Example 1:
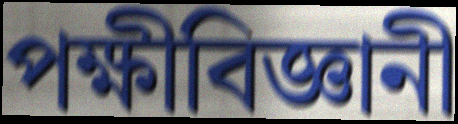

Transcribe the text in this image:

পক্ষীবিজ্ঞানী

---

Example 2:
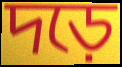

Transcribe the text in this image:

দড়ে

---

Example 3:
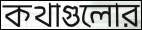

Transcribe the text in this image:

কথাগুলোর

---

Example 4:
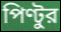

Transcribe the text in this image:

পিণ্টুর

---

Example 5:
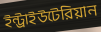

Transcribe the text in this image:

ইন্ট্রাইউটেরিয়ান